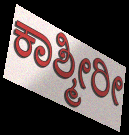
ಕಾಶ್ಮೀರೀ